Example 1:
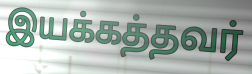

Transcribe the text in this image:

இயக்கத்தவர்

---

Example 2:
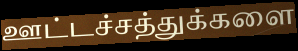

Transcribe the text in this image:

ஊட்டச்சத்துக்களை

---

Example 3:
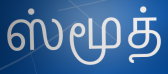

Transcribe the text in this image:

ஸ்மூத்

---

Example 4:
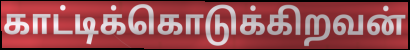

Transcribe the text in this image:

காட்டிக்கொடுக்கிறவன்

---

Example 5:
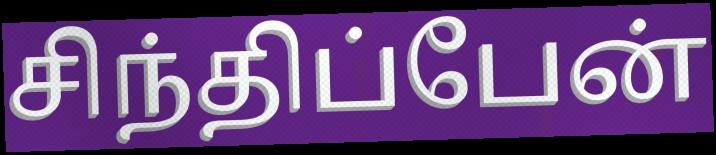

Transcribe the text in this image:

சிந்திப்பேன்